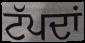
ਟੱਪਦਾਂ